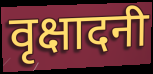
वृक्षादनी